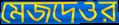
মেজদেওর